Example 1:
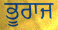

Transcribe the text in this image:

ਭੂਰਾਜ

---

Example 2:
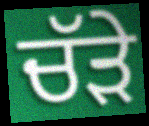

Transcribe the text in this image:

ਚੱੜੇ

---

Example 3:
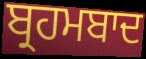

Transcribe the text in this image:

ਬ੍ਰਹਮਬਾਦ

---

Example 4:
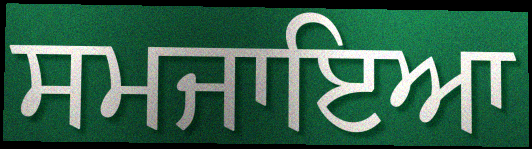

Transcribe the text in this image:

ਸਮਜਾਇਆ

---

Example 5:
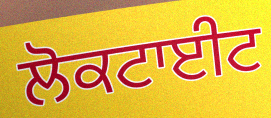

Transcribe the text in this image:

ਲੋਕਟਾਈਟ